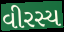
વીરસ્ય